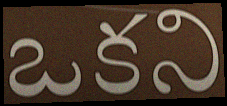
ఒకని